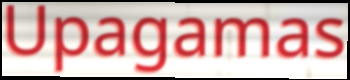
Upagamas